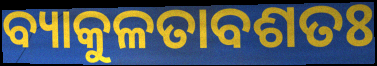
ବ୍ୟାକୁଳତାବଶତଃ